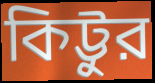
কিট্টুর